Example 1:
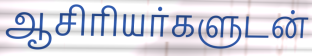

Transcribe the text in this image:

ஆசிரியர்களுடன்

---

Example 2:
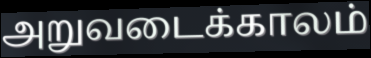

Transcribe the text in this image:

அறுவடைக்காலம்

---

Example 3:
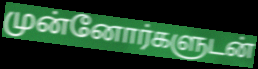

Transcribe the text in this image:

முன்னோர்களுடன்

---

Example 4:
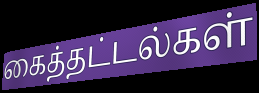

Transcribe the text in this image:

கைத்தட்டல்கள்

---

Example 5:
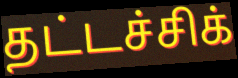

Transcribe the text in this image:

தட்டச்சிக்